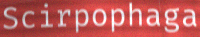
Scirpophaga